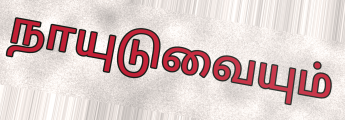
நாயுடுவையும்